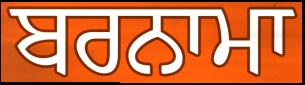
ਬਰਨਾਮਾ